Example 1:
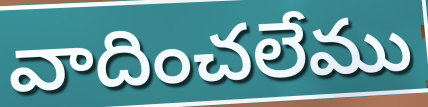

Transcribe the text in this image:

వాదించలేము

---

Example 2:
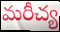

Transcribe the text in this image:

మరీచ్య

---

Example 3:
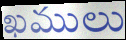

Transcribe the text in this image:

ఖములు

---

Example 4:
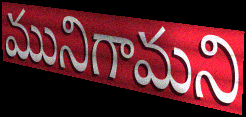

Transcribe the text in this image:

మునిగామని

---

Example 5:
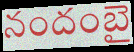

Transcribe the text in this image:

నందంబై